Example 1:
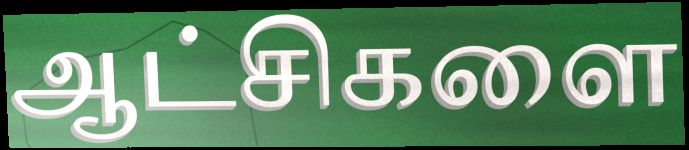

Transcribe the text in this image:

ஆட்சிகளை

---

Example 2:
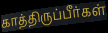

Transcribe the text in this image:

காத்திருப்பீர்கள்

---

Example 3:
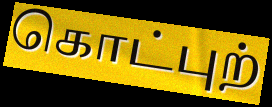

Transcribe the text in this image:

கொட்புற்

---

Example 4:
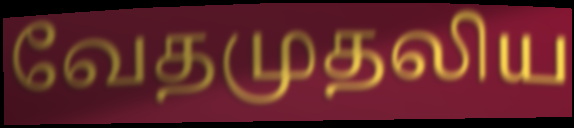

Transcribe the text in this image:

வேதமுதலிய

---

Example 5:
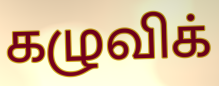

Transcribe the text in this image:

கழுவிக்